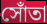
সোঁতা